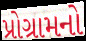
પ્રોગ્રામનો